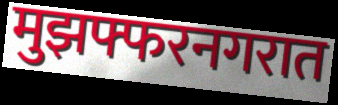
मुझफ्फरनगरात